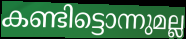
കണ്ടിട്ടൊന്നുമല്ല